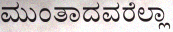
ಮುಂತಾದವರೆಲ್ಲಾ